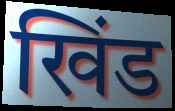
खिंड